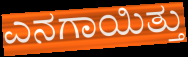
ಎನಗಾಯಿತ್ತು